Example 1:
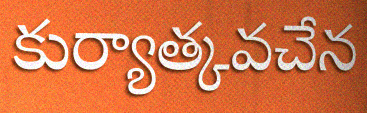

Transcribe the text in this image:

కుర్యాత్కవచేన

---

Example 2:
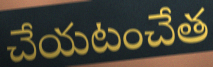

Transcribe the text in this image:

చేయటంచేత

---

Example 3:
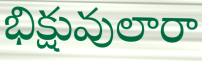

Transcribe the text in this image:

భిక్షువులారా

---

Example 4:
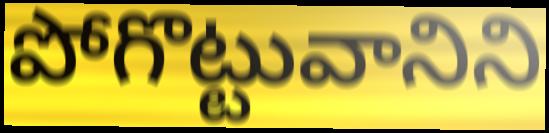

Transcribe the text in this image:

పోగొట్టువానిని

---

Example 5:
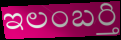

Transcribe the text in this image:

ఇలంబర్తి